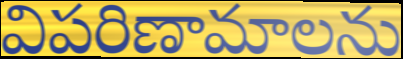
విపరిణామాలను